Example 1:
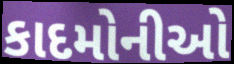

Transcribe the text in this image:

કાદમોનીઓ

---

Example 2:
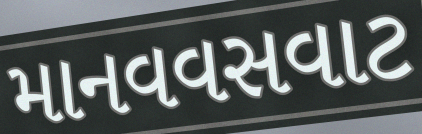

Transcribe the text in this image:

માનવવસવાટ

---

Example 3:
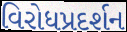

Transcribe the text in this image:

વિરોધપ્રદર્શન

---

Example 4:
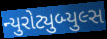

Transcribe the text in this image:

ન્યુરોટ્યુબ્યુલ્સ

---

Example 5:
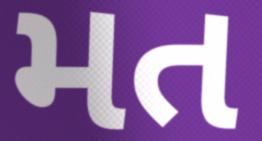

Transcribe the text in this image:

મત